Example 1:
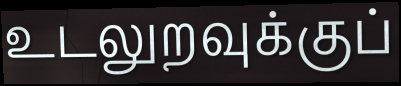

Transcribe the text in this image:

உடலுறவுக்குப்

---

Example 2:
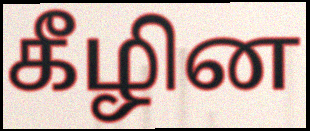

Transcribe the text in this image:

கீழின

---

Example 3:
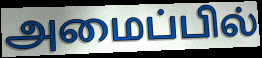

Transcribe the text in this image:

அமைப்பில்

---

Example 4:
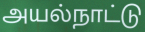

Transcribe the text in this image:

அயல்நாட்டு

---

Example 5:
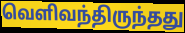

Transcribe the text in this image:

வெளிவந்திருந்தது